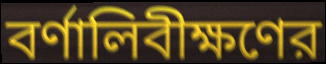
বর্ণালিবীক্ষণের